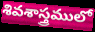
శివశాస్త్రములో